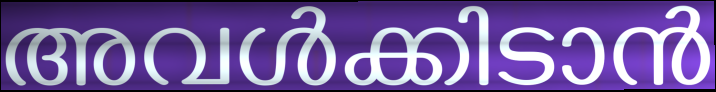
അവൾക്കിടാൻ